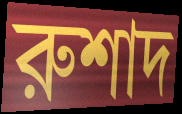
রুশাদ